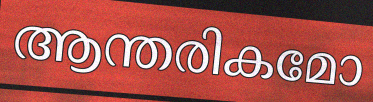
ആന്തരികമോ